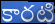
కారటి